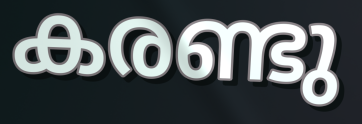
കരണ്ടു